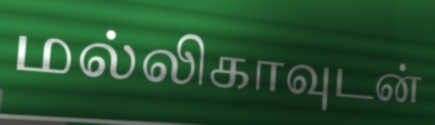
மல்லிகாவுடன்